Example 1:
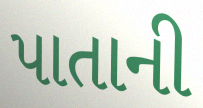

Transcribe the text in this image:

પાતાની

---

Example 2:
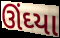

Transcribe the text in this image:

ઊંઘ્યા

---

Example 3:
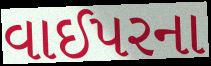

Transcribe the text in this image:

વાઈપરના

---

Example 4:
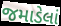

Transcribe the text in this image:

જમાડેલાં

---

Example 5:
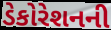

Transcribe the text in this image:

ડેકોરેશનની